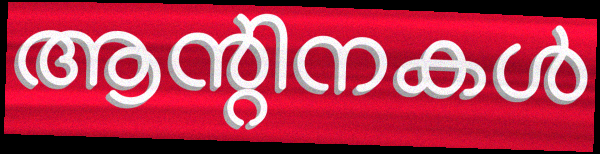
ആന്റിനകൾ